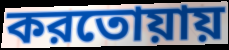
করতোয়ায়